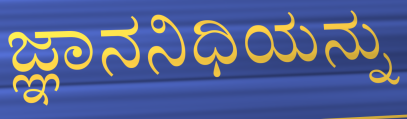
ಜ್ಞಾನನಿಧಿಯನ್ನು